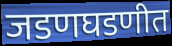
जडणघडणीत